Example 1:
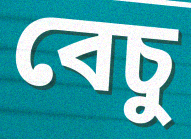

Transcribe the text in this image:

বেচু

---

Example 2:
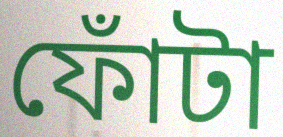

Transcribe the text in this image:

ফোঁটা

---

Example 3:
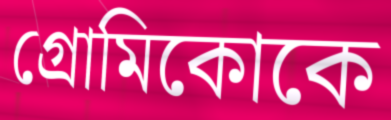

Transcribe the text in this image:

গ্রোমিকোকে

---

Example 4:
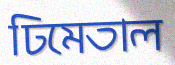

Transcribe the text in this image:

ঢিমেতাল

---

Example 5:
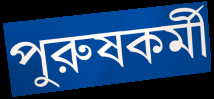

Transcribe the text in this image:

পুরুষকর্মী